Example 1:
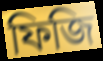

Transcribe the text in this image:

ফিজি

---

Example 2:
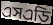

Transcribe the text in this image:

এসএডি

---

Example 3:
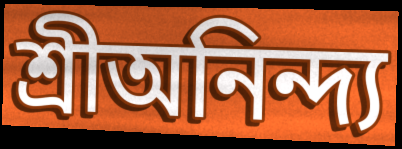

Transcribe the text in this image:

শ্রীঅনিন্দ্য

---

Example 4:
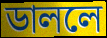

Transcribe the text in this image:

ডাললে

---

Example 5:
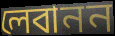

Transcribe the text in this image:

লেবানন